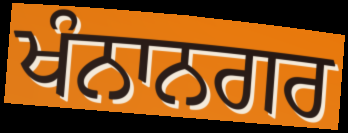
ਖੰਨਾਨਗਰ